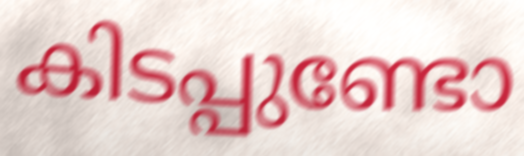
കിടപ്പുണ്ടോ